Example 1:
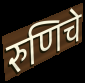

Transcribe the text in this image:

रुणिचे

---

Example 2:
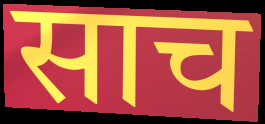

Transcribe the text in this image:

साच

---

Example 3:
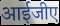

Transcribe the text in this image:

आईजीए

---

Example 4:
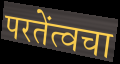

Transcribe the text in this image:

परतेंत्वचा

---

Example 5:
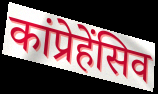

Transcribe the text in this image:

कांप्रेहेंसिव